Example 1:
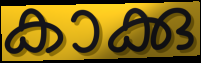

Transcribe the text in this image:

കാക്കു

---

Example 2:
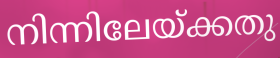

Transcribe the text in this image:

നിന്നിലേയ്ക്കതു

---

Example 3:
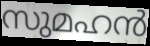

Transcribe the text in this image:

സുമഹൻ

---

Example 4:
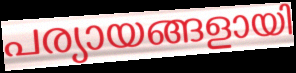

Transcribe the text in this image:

പര്യായങ്ങളായി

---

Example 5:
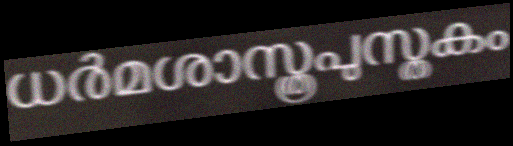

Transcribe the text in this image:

ധർമശാസ്ത്രപുസ്തകം